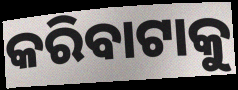
କରିବାଟାକୁ